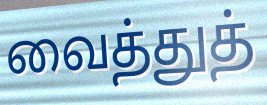
வைத்துத்